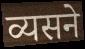
व्यसने